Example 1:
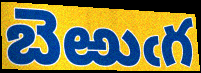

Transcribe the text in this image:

బెఱుఁగ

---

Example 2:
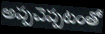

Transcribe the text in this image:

అప్పచెప్పటంతో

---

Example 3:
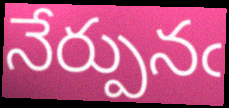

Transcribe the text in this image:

నేర్పునఁ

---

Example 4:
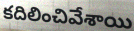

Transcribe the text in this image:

కదిలించివేశాయి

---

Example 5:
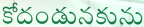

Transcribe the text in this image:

కోదండునకును